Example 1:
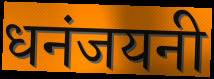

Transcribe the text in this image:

धनंजयनी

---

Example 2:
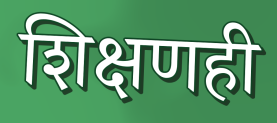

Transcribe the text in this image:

शिक्षणही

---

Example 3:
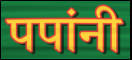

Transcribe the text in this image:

पपांनी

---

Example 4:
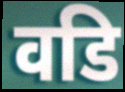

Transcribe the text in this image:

वडि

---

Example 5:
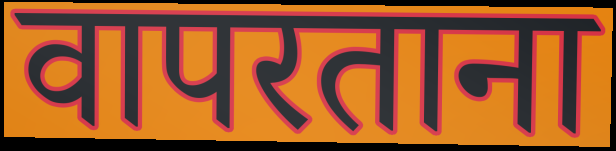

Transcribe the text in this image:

वापरताना